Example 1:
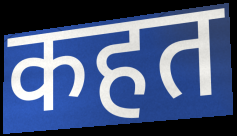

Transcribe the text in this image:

कहत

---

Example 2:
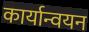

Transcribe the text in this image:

कार्यान्वयन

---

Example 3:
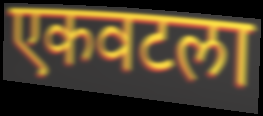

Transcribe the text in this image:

एकवटला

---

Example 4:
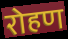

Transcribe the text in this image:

रोहण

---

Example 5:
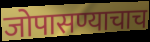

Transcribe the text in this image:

जोपासण्याचाच